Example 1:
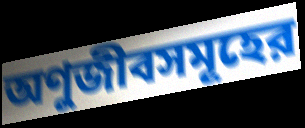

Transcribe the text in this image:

অণুজীবসমূহের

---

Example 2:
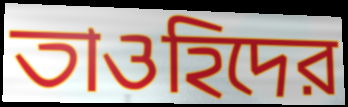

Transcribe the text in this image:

তাওহিদের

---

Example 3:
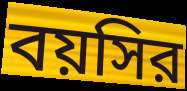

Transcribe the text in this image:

বয়সির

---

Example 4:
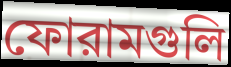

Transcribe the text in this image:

ফোরামগুলি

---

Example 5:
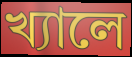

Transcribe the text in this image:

খ্যালে